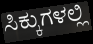
ಸಿಕ್ಕುಗಳಲ್ಲಿ